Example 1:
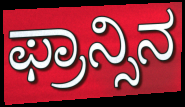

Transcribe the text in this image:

ಫ್ರಾನ್ಸಿನ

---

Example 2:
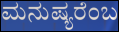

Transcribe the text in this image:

ಮನುಷ್ಯರೆಂಬ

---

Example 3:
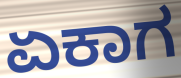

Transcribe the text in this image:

ಏಕಾಗ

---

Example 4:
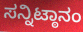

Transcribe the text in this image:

ಸನ್ನಿಟ್ಠಾನಂ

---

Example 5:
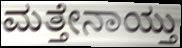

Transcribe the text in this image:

ಮತ್ತೇನಾಯ್ತು